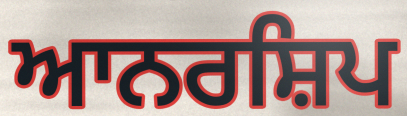
ਆਨਰਸ਼ਿਪ